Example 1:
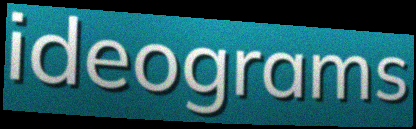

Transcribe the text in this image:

ideograms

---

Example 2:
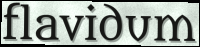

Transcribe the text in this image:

flavidum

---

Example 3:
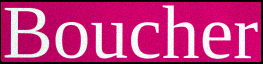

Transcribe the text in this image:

Boucher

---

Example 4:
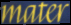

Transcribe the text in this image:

mater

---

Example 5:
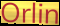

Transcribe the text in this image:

Orlin